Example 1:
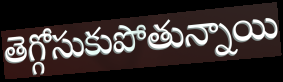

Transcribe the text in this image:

తెగ్గోసుకుపోతున్నాయి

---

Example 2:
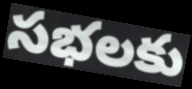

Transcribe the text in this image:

సభలకు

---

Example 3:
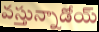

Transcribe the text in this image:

వస్తున్నాడోయ్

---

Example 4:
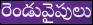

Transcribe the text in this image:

రెండువైపులు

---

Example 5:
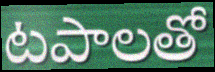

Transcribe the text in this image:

టపాలతో